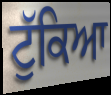
ਟੁੱਕਿਆ